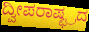
ದ್ವೀಪರಾಷ್ಟ್ರದ